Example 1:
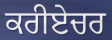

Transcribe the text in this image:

ਕਰੀਏਚਰ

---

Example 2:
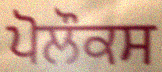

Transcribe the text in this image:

ਪੋਲੌਕਸ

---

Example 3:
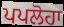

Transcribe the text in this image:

ਪਪਲੋਹਾ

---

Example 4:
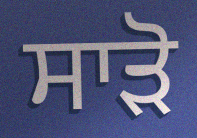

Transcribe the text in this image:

ਸਾੜੋ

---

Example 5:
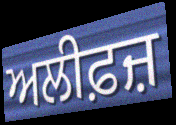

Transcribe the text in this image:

ਅਲੀਫ਼ਜ਼